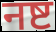
नष्ट